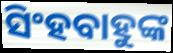
ସିଂହବାହୁଙ୍କ